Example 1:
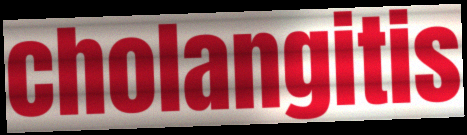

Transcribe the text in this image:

cholangitis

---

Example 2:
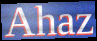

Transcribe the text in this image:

Ahaz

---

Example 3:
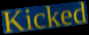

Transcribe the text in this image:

Kicked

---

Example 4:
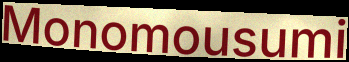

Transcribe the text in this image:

Monomousumi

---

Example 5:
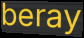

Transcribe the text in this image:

beray